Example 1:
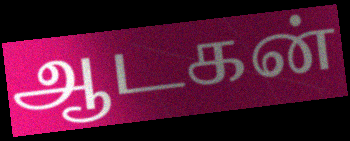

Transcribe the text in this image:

ஆடகன்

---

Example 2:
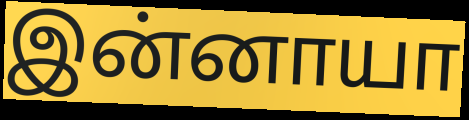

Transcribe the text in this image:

இன்னாயா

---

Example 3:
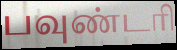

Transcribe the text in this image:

பவுண்டரி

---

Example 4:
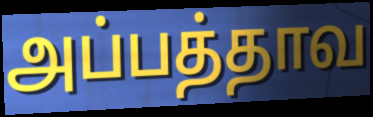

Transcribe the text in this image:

அப்பத்தாவ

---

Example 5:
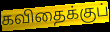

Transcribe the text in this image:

கவிதைக்குப்